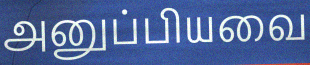
அனுப்பியவை